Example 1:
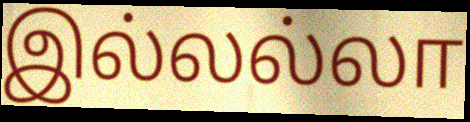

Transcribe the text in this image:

இல்லல்லா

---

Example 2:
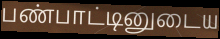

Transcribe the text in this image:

பண்பாட்டினுடைய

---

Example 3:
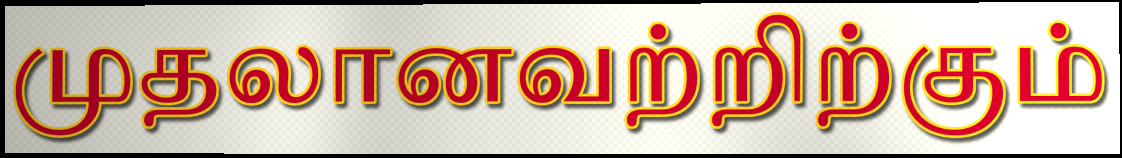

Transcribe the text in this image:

முதலானவற்றிற்கும்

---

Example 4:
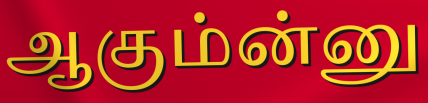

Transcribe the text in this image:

ஆகும்ன்னு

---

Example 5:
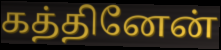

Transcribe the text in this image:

கத்தினேன்